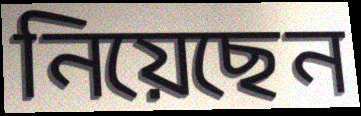
নিয়েছেন